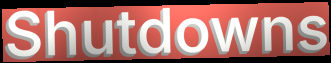
Shutdowns